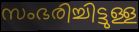
സംഭരിച്ചിട്ടുള്ള